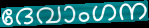
ദേവാംഗന